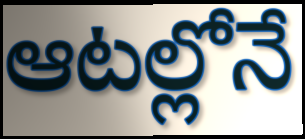
ఆటల్లోనే